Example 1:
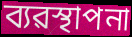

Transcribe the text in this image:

ব্যৱস্থাপনা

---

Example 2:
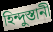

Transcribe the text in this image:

হিন্দুস্তানী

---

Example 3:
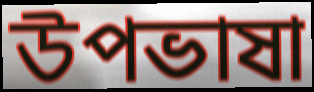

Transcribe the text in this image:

উপভাষা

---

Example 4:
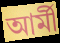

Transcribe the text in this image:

আৰ্মী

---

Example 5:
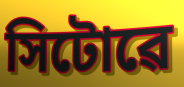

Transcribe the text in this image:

সিটোৱে